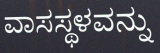
ವಾಸಸ್ಥಳವನ್ನು